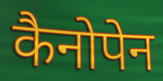
कैनोपेन